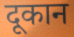
दूकान